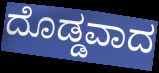
ದೊಡ್ಡವಾದ